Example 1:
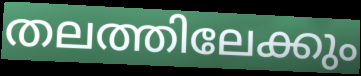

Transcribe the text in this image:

തലത്തിലേക്കും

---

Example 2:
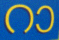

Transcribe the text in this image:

റാ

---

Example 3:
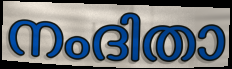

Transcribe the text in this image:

നംദിതാ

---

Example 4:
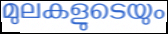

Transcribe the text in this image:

മുലകളുടെയും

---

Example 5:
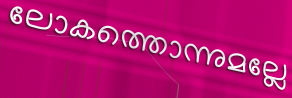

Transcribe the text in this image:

ലോകത്തൊന്നുമല്ലേ